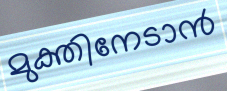
മുക്തിനേടാൻ